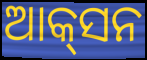
ଆକ୍‌ସନ